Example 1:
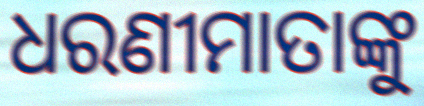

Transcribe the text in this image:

ଧରଣୀମାତାଙ୍କୁ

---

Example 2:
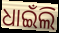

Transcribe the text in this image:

ଧାଇଁଲି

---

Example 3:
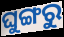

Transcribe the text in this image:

ଘୁଙ୍ଗରୁ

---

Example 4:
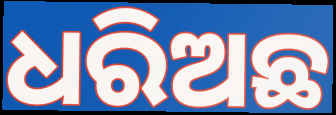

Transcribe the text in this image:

ଧରିଅଛ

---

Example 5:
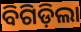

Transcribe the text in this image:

ବିଗିଡ଼ିଲା